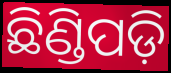
ଛିଣ୍ଡିପଡ଼ି